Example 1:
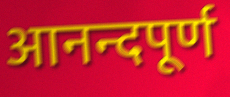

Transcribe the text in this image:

आनन्दपूर्ण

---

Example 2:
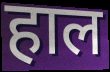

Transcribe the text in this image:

हाल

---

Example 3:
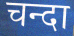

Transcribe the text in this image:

चन्दा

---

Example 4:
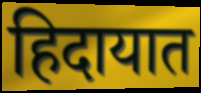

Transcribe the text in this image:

हिदायात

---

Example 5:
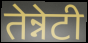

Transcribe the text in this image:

तेन्नेटी